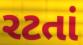
રટતાં